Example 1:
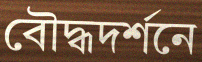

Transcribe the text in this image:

বৌদ্ধদর্শনে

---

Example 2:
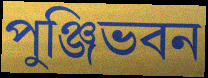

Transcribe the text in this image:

পুঞ্জিভবন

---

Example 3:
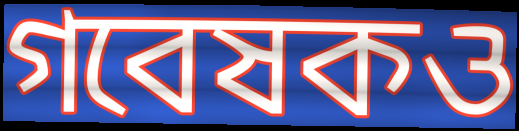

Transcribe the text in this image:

গবেষকও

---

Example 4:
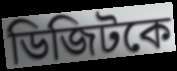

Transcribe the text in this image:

ডিজিটকে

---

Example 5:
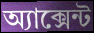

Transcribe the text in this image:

অ্যাক্সেন্ট